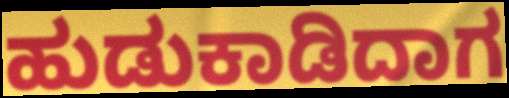
ಹುಡುಕಾಡಿದಾಗ